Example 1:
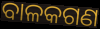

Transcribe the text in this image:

ବାଳକଗଣ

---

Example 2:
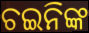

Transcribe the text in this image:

ଚଇନିଙ୍କ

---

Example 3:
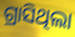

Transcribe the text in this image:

ଗ୍ରାସିଥିଲା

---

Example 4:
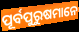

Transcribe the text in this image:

ପୂର୍ବପୁରୁଷମାନେ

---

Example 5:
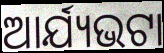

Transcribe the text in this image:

ଆର୍ଯ୍ୟଭଟା